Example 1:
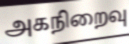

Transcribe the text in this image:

அகநிறைவு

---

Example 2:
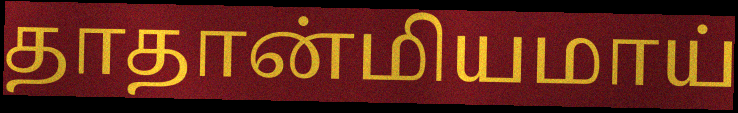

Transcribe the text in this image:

தாதான்மியமாய்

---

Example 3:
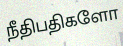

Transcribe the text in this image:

நீதிபதிகளோ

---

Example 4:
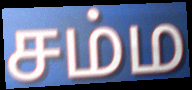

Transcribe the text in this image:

சம்ம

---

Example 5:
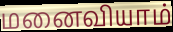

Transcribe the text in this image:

மனைவியாம்